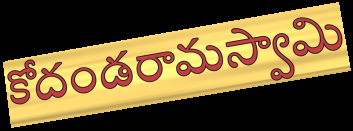
కోదండరామస్వామి